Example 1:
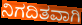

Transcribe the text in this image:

ನಿಗದಿತವಾಗಿ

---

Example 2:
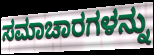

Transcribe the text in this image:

ಸಮಾಚಾರಗಳನ್ನು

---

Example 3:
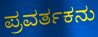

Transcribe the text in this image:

ಪ್ರವರ್ತಕನು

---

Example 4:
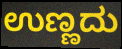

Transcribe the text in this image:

ಉಣ್ಣದು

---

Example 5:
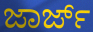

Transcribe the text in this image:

ಜಾರ್ಜ್